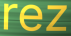
rez